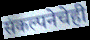
संकल्पनेचेही